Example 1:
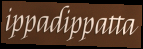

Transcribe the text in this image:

ippadippatta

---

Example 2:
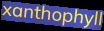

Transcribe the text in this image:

xanthophyll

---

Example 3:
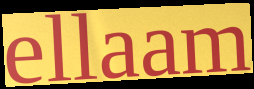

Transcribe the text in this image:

ellaam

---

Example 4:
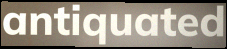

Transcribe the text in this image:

antiquated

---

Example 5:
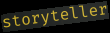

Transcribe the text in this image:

storyteller